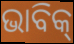
ଭାବିକ୍